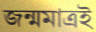
জন্মমাত্রই